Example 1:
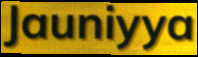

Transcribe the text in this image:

Jauniyya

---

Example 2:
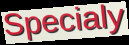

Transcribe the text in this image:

Specialy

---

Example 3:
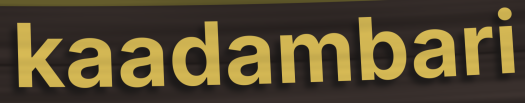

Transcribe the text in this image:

kaadambari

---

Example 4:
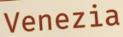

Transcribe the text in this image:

Venezia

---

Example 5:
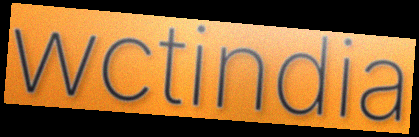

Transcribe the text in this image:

wctindia